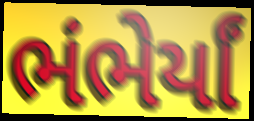
ભંભેર્યાં